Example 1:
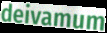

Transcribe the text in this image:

deivamum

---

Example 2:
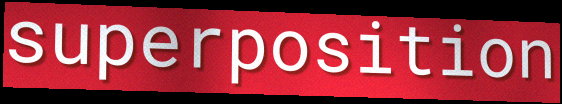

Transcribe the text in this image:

superposition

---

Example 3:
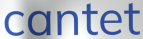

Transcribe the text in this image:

cantet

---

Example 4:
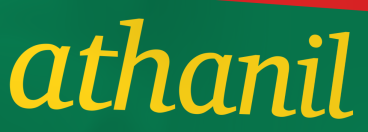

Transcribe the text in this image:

athanil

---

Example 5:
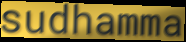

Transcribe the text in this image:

sudhamma